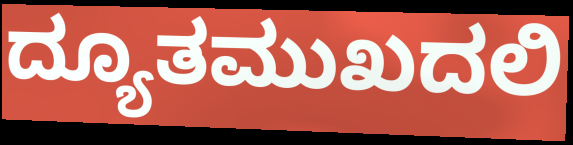
ದ್ಯೂತಮುಖದಲಿ